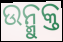
ଉନ୍ମୁକ୍ତ